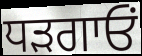
ਧੜਗਾਓਂ